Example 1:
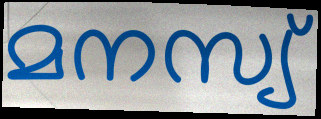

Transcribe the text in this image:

മനസ്യ്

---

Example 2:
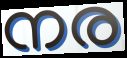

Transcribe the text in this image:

നര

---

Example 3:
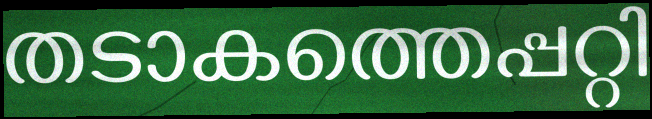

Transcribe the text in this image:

തടാകത്തെപ്പറ്റി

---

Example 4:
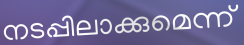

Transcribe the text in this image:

നടപ്പിലാക്കുമെന്ന്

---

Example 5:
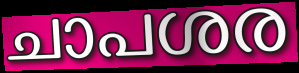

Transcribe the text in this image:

ചാപശര